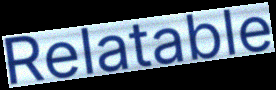
Relatable